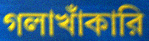
গলাখাঁকারি